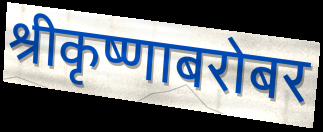
श्रीकृष्णाबरोबर